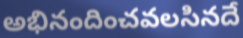
అభినందించవలసినదే